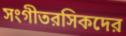
সংগীতরসিকদের